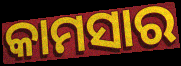
କାମସାର